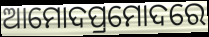
ଆମୋଦପ୍ରମୋଦରେ